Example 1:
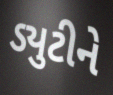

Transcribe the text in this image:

ડ્યુટીને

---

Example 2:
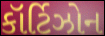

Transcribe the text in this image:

કૉર્ટિઝોન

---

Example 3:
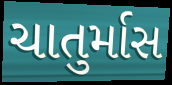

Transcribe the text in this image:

ચાતુર્માસ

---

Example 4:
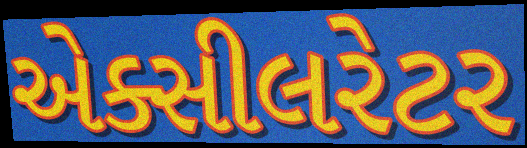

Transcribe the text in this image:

એક્સીલરેટર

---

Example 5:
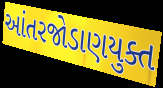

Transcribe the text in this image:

આંતરજોડાણયુક્ત